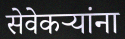
सेवेकऱ्यांना